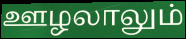
ஊழலாலும்